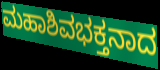
ಮಹಾಶಿವಭಕ್ತನಾದ